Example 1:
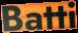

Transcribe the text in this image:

Batti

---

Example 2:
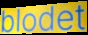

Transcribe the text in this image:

blodet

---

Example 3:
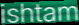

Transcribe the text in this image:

ishtam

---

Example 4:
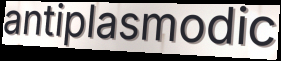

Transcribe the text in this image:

antiplasmodic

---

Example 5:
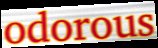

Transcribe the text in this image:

odorous